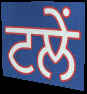
ਟਲੇਂ